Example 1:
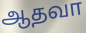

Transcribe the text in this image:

ஆதவா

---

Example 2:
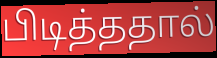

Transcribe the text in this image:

பிடித்ததால்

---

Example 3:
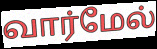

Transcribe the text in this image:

வார்மேல்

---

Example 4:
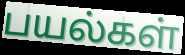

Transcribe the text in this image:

பயல்கள்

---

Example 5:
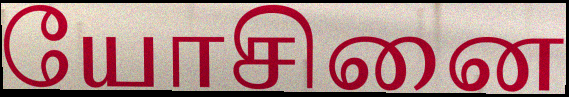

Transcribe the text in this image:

யோசினை